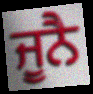
ਜੂਨੈ